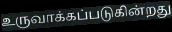
உருவாக்கப்படுகின்றது